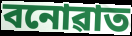
বনোৱাত